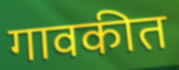
गावकीत